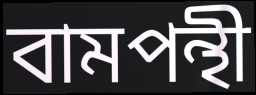
বামপন্থী